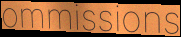
ommissions